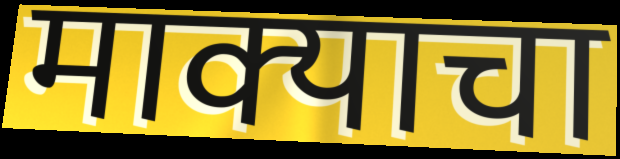
माक्याचा